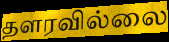
தளரவில்லை